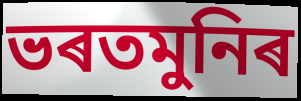
ভৰতমুনিৰ